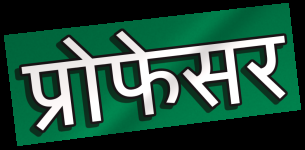
प्रोफेसर